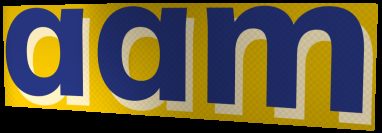
aam